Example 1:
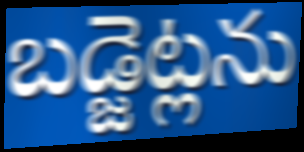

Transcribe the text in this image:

బడ్జెట్లను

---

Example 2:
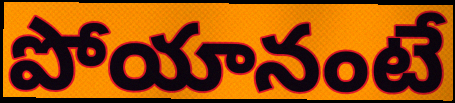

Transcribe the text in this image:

పోయానంటే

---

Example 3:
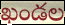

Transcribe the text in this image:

ఖండల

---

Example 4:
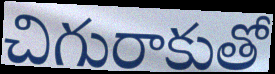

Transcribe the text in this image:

చిగురాకుతో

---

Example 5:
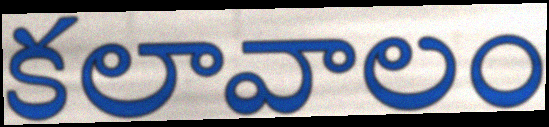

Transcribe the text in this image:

కలావాలం